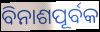
ବିନାଶପୂର୍ବକ